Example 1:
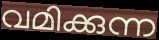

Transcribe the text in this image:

വമിക്കുന്ന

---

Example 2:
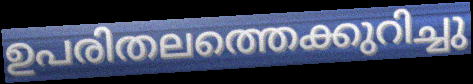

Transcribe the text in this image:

ഉപരിതലത്തെക്കുറിച്ചു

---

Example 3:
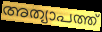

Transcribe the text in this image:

അത്യാപത്ത്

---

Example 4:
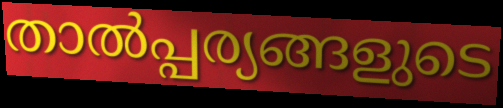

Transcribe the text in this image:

താൽപ്പര്യങ്ങളുടെ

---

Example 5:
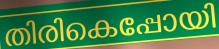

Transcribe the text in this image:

തിരികെപ്പോയി